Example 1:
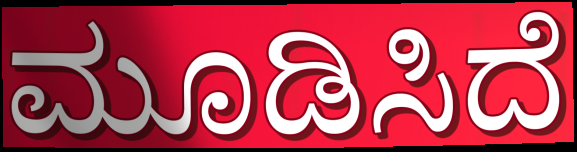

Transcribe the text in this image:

ಮೂಡಿಸಿದೆ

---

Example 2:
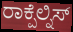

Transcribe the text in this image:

ರಾಕ್ಪೆಲ್ನಿಸ್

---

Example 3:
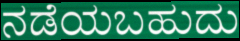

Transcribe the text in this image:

ನಡೆಯಬಹುದು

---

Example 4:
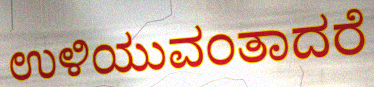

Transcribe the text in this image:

ಉಳಿಯುವಂತಾದರೆ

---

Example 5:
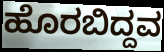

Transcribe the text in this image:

ಹೊರಬಿದ್ದವ